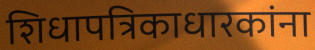
शिधापत्रिकाधारकांना